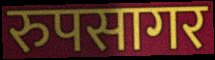
रुपसागर